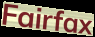
Fairfax